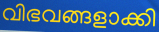
വിഭവങ്ങളാക്കി